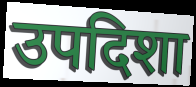
उपदिशा